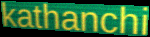
kathanchi